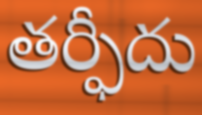
తర్ఫీదు